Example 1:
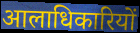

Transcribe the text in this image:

आलाधिकारियों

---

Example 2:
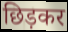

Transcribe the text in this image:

छिड़कर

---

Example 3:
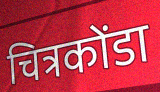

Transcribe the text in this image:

चित्रकोंडा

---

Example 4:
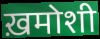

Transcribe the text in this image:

ख़मोशी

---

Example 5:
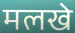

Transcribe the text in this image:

मलखे